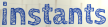
instants